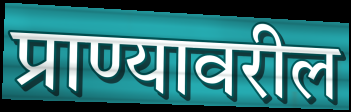
प्राण्यावरील